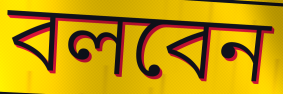
বলবেন